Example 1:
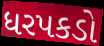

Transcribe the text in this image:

ધરપકડો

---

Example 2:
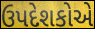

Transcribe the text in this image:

ઉપદેશકોએ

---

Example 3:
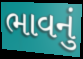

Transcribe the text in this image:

ભાવનું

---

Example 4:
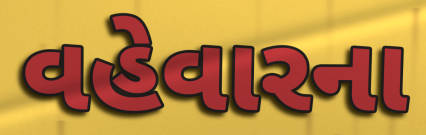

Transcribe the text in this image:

વહેવારના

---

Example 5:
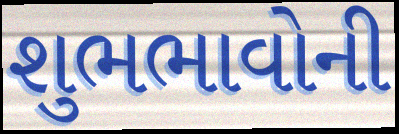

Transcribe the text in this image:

શુભભાવોની